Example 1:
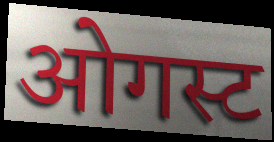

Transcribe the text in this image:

ओगस्ट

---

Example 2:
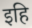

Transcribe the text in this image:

इहि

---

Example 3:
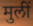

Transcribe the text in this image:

मुलीं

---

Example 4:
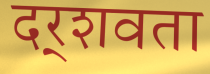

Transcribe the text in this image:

दर्शवता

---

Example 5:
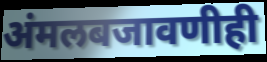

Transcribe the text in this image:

अंमलबजावणीही